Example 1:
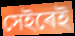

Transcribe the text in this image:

সেইৰেই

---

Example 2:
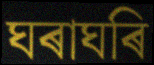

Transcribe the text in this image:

ঘৰাঘৰি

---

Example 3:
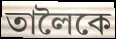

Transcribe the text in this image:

তালৈকে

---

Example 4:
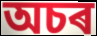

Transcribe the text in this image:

অচৰ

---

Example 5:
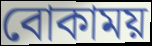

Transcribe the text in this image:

বোকাময়